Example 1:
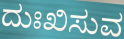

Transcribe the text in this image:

ದುಃಖಿಸುವ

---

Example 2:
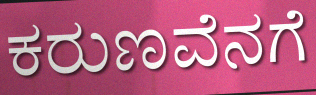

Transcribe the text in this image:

ಕರುಣವೆನಗೆ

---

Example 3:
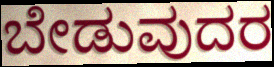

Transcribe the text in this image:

ಬೇಡುವುದರ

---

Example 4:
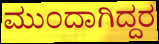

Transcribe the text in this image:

ಮುಂದಾಗಿದ್ದರ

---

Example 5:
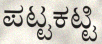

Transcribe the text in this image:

ಪಟ್ಟಕಟ್ಟಿ